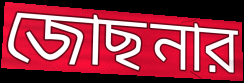
জোছনার